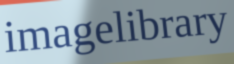
imagelibrary